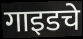
गाइडचे